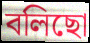
বলিছো